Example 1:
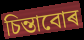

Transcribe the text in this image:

চিন্তাবোৰ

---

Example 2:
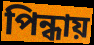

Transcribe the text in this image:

পিন্ধায়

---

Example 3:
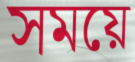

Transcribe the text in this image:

সময়ে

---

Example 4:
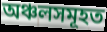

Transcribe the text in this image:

অঞ্চলসমূহত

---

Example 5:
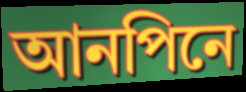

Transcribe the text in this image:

আনপিনে